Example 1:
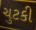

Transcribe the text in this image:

ચુટકી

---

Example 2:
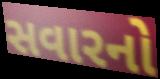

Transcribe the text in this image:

સવારનો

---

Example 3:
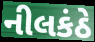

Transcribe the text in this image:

નીલકંઠે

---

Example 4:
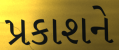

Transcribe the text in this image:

પ્રકાશને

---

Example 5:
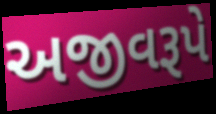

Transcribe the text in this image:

અજીવરૂપે